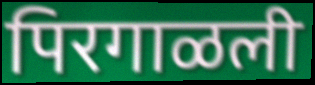
पिरगाळली